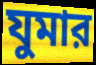
যুমার